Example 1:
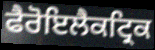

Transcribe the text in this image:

ਫੈਰੋਇਲੈਕਟ੍ਰਿਕ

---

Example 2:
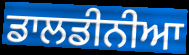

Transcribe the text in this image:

ਡਾਲਡੀਨੀਆ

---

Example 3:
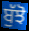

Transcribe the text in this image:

ਬੁੱਝੋ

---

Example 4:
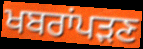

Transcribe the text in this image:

ਖਬਰਾਂਪੜਣ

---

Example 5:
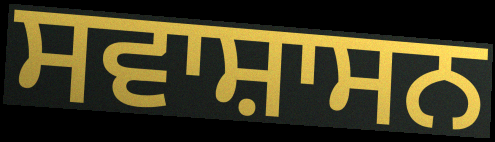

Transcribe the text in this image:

ਸਵਾਸ਼ਾਸਨ